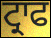
ਟ੍ਰਾਫ